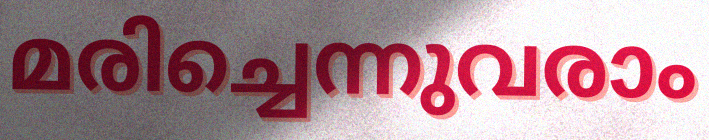
മരിച്ചെന്നുവരാം